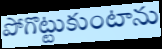
పోగొట్టుకుంటాను